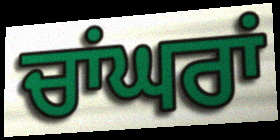
ਚਾਂਘਰਾਂ